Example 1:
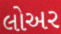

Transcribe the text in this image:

લોઅર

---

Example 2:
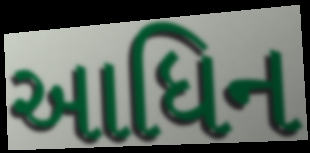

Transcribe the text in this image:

આધિન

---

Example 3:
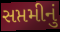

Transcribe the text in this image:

સપ્તમીનું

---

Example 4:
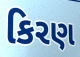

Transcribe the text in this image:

કિરણ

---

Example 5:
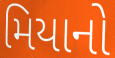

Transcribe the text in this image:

મિયાનો